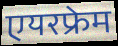
एयरफ्रेम